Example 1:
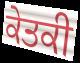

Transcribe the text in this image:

ਕੇਤਕੀ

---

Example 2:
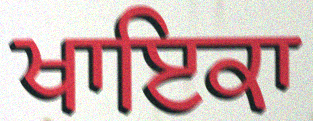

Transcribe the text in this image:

ਖਾਇਕਾ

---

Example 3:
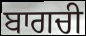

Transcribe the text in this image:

ਬਾਗਚੀ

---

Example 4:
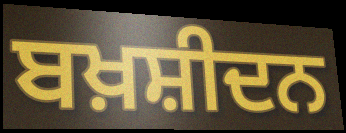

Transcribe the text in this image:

ਬਖ਼ਸ਼ੀਦਨ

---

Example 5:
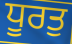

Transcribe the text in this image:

ਧੂਰਤੁ